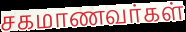
சகமாணவர்கள்